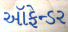
ઑફેન્ડર